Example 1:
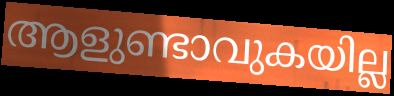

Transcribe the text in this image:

ആളുണ്ടാവുകയില്ല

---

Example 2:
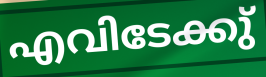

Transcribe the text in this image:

എവിടേക്കു്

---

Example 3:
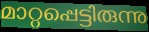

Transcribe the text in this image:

മാറ്റപ്പെട്ടിരുന്നു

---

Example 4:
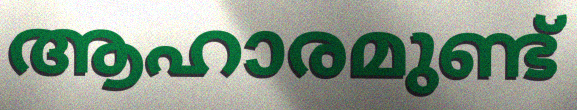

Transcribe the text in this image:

ആഹാരമുണ്ട്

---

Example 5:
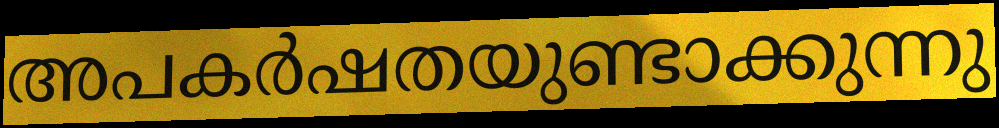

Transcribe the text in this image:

അപകർഷതയുണ്ടാക്കുന്നു